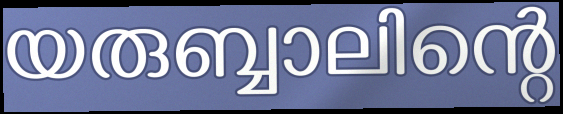
യരുബ്ബാലിന്റെ